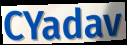
CYadav